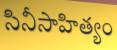
సినీసాహిత్యం